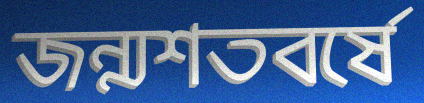
জন্মশতবর্ষে